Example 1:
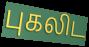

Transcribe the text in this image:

புகலிட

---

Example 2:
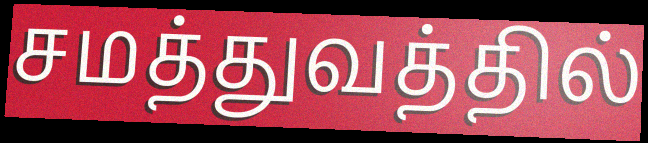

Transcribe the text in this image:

சமத்துவத்தில்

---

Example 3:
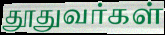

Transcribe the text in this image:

தூதுவர்கள்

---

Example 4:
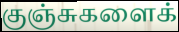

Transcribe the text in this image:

குஞ்சுகளைக்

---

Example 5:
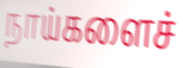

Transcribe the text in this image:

நாய்களைச்